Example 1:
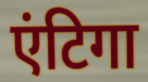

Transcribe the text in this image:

एंटिगा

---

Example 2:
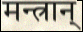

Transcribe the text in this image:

मन्त्रान्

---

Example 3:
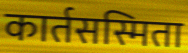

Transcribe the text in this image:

कार्तसस्मिता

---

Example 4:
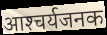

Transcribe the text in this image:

आश्‍चर्यजनक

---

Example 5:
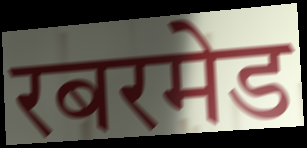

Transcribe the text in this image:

रबरमेड